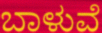
ಬಾಳುವೆ